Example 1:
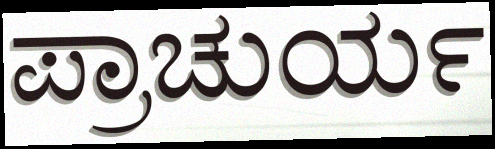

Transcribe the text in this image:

ಪ್ರಾಚುರ್ಯ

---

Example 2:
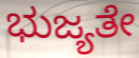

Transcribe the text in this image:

ಭುಜ್ಯತೇ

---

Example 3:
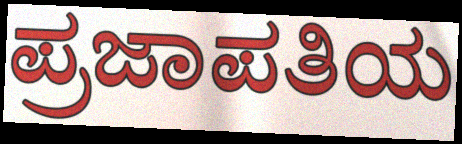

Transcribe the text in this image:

ಪ್ರಜಾಪತಿಯ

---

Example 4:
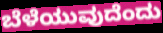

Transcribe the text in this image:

ಬೆಳೆಯುವುದೆಂದು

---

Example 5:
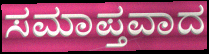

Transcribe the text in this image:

ಸಮಾಪ್ತವಾದ